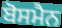
ਬੋਸਮੈਨ